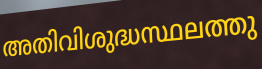
അതിവിശുദ്ധസ്ഥലത്തു